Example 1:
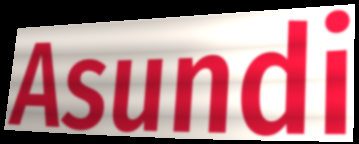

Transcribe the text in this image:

Asundi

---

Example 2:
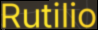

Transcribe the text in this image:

Rutilio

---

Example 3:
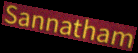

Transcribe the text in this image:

Sannatham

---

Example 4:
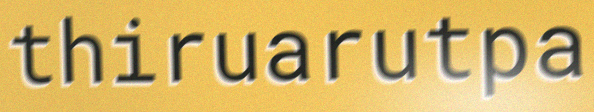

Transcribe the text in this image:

thiruarutpa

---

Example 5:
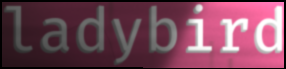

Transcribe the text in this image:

ladybird